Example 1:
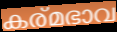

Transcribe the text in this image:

കര്മഭാവ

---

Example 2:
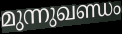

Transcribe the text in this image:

മുന്നുഖണ്ഡം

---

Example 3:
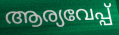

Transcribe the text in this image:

ആര്യവേപ്പ്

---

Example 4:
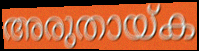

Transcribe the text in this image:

അരുതായ്ക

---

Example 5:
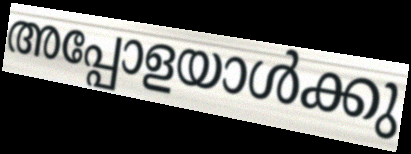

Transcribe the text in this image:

അപ്പോളയാൾക്കു